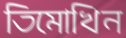
তিমোখিন